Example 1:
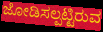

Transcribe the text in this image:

ಜೋಡಿಸಲ್ಪಟ್ಟಿರುವ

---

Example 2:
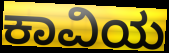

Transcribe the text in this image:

ಕಾವಿಯ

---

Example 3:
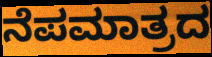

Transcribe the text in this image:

ನೆಪಮಾತ್ರದ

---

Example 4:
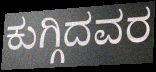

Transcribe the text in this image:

ಕುಗ್ಗಿದವರ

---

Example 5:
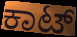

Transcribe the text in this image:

ಕಾಟ್